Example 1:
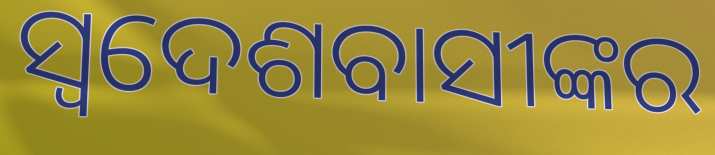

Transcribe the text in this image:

ସ୍ୱଦେଶବାସୀଙ୍କର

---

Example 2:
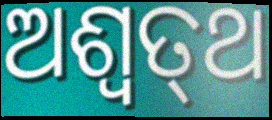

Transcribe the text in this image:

ଅଶ୍ଵତ୍‌ଥ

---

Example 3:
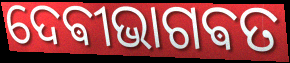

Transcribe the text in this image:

ଦେଵୀଭାଗଵତ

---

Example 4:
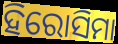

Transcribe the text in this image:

ହିରୋସିମା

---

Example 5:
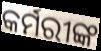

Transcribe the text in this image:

କର୍ମରୀଙ୍କ